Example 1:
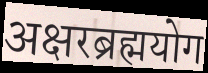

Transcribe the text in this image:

अक्षरब्रह्मयोग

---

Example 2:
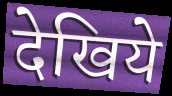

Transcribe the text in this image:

देखिये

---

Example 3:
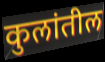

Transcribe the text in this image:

कुलांतील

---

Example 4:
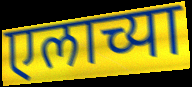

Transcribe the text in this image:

एलाच्या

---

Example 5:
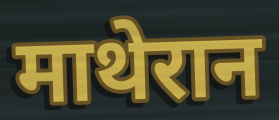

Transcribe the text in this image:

माथेरान